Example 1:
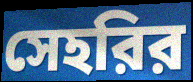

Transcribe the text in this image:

সেহরির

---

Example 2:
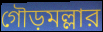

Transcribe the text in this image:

গৌড়মল্লার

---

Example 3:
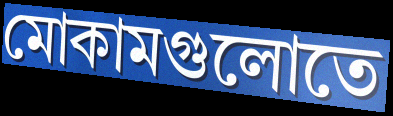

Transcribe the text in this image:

মোকামগুলোতে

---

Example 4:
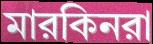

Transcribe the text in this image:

মারকিনরা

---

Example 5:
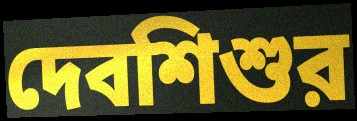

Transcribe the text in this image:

দেবশিশুর